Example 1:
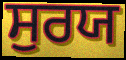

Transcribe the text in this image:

ਸੁਰਯ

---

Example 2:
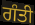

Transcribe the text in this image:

ਗੰਤੀ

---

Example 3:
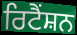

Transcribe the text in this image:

ਰਿਟੈਂਸ਼ਨ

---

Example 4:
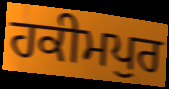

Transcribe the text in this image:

ਹਕੀਮਪੁਰ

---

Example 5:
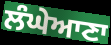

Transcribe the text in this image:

ਲੰਘੇਆਣਾ